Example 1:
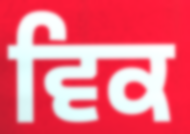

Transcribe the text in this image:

ਵਿਕ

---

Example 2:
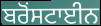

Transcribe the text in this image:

ਬਰੋਂਸਟਾਈਨ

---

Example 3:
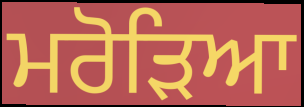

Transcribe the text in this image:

ਮਰੋੜਿਆ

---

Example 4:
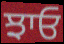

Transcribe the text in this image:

ਝਾਓ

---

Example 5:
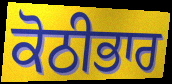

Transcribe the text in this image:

ਕੋਠੀਭਾਰ